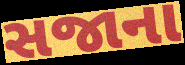
સજાના